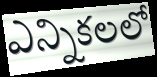
ఎన్నికలలో